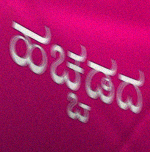
ಹಚ್ಚಡದ